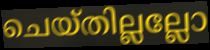
ചെയ്തില്ലല്ലോ